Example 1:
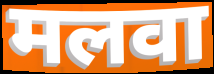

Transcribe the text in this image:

मलवा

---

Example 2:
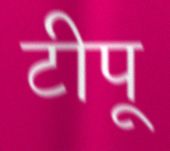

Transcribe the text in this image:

टीपू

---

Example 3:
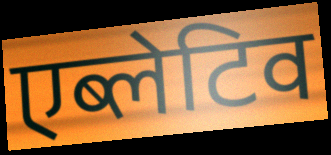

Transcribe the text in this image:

एब्लेटिव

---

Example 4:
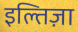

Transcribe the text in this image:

इल्तिज़ा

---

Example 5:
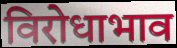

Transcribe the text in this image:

विरोधाभाव